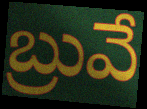
బ్రువే